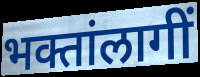
भक्तांलागीं